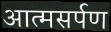
आत्मसर्पण